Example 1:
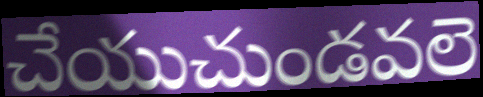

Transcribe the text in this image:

చేయుచుండవలె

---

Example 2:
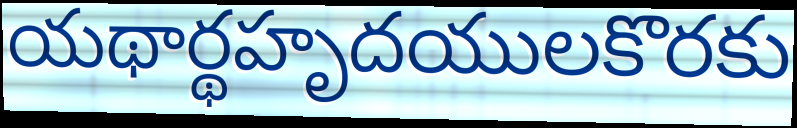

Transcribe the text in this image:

యథార్థహృదయులకొరకు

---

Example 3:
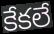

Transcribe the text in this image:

కేకలే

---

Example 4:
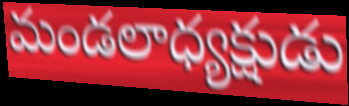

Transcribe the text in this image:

మండలాధ్యక్షుడు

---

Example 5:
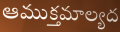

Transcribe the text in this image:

ఆముక్తమాల్యద